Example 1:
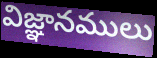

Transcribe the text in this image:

విజ్ఞానములు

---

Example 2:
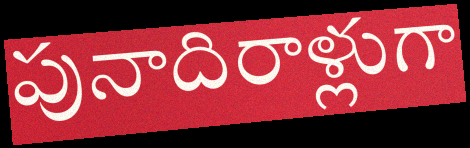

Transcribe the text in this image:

పునాదిరాళ్లుగా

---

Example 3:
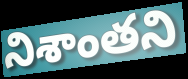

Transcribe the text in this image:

నిశాంతని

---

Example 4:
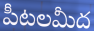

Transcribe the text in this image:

పీటలమీద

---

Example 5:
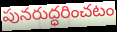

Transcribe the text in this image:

పునరుద్ధరించటం